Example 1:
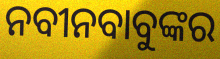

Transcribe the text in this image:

ନବୀନବାବୁଙ୍କର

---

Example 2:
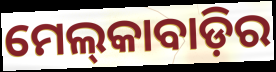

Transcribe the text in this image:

ମେଲ୍‌କାବାଡ଼ିର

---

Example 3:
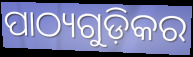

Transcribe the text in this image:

ପାଠ୍ୟଗୁଡ଼ିକର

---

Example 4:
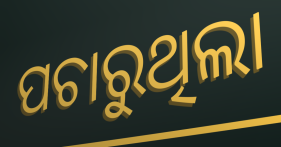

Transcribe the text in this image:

ପଚାରୁଥିଲା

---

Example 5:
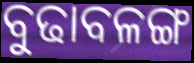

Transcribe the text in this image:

ବୁଢାବଳଙ୍ଗ